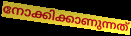
നോക്കിക്കാണുന്നത്